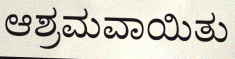
ಆಶ್ರಮವಾಯಿತು